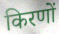
किरणों